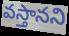
వస్తానని